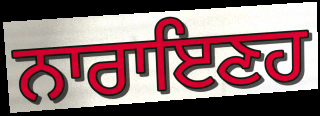
ਨਾਰਾਇਣਹ